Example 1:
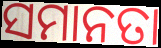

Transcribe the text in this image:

ସମାନତା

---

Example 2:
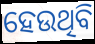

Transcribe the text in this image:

ହେଉଥିବି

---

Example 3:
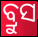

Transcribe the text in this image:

ବ୍ରୁସ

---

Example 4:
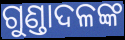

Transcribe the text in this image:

ଗୁଣ୍ଡାଦଳଙ୍କ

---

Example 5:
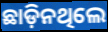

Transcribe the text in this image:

ଛାଡ଼ିନଥିଲେ